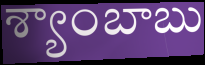
శ్యాంబాబు